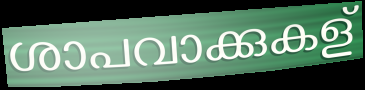
ശാപവാക്കുകള്